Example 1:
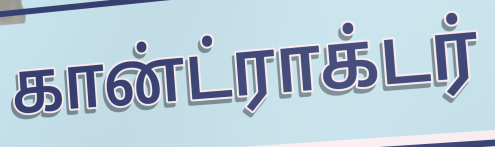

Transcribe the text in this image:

கான்ட்ராக்டர்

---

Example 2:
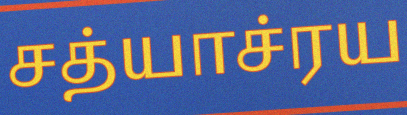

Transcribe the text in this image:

சத்யாச்ரய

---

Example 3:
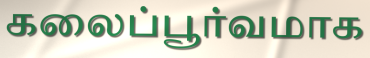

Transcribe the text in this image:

கலைப்பூர்வமாக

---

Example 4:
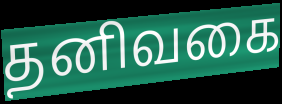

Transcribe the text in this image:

தனிவகை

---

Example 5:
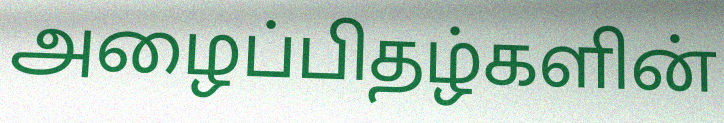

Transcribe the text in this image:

அழைப்பிதழ்களின்